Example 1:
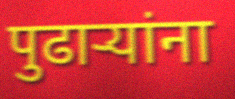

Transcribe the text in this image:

पुढाऱ्यांना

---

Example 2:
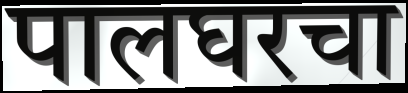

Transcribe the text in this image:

पालघरचा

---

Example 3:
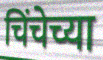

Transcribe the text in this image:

चिंचेच्या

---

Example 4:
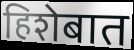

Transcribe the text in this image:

हिशेबात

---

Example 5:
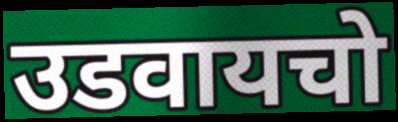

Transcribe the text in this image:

उडवायचो